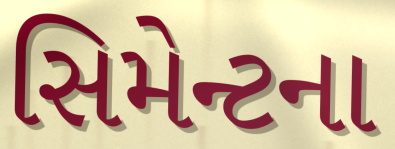
સિમેન્ટના